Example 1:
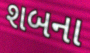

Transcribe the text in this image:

શબના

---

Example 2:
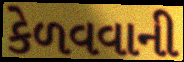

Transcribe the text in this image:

કેળવવાની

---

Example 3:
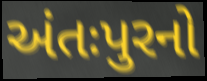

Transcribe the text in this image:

અંતઃપુરનો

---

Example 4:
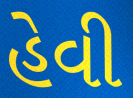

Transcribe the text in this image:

હેવી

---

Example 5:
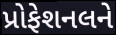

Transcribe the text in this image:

પ્રોફેશનલને